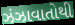
ઝંઝાવાતોથી